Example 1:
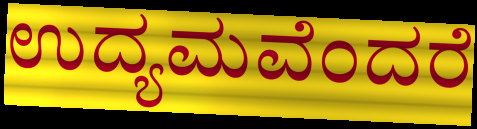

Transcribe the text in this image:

ಉದ್ಯಮವೆಂದರೆ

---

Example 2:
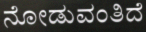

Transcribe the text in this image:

ನೋಡುವಂತಿದೆ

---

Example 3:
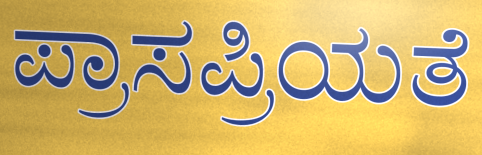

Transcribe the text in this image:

ಪ್ರಾಸಪ್ರಿಯತೆ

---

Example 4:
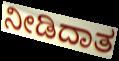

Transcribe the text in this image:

ನೀಡಿದಾತ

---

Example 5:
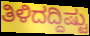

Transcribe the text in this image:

ತಿಳಿದದ್ದಿಷ್ಟು